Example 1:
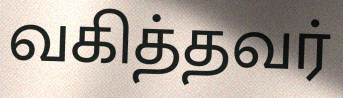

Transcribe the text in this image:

வகித்தவர்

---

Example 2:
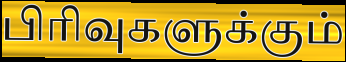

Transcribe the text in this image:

பிரிவுகளுக்கும்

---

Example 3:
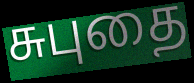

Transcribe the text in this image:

சுபுதை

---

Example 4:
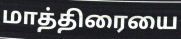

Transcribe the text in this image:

மாத்திரையை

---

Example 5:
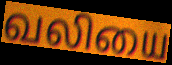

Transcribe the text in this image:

வலியை